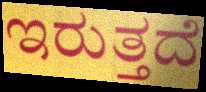
ಇರುತ್ತದೆ